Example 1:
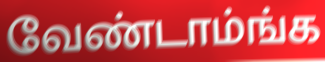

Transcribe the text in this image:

வேண்டாம்ங்க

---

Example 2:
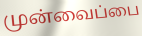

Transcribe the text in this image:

முன்வைப்பை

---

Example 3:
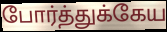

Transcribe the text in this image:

போர்த்துக்கேய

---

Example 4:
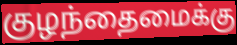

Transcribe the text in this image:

குழந்தைமைக்கு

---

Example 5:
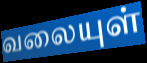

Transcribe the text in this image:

வலையுள்